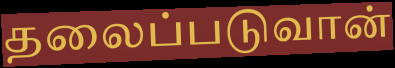
தலைப்படுவான்